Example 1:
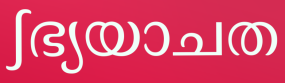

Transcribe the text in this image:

ഽഭ്യയാചത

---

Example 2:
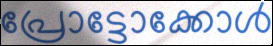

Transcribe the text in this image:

പ്രോട്ടോക്കോൾ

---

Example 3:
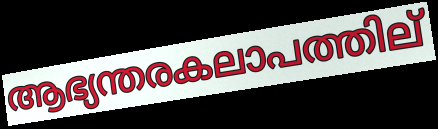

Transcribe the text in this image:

ആഭ്യന്തരകലാപത്തില്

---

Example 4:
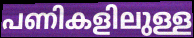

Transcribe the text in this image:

പണികളിലുള്ള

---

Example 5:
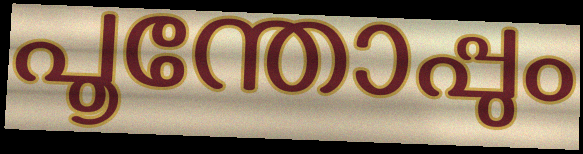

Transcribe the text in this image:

പൂന്തോപ്പും